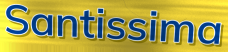
Santissima